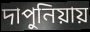
দাপুনিয়ায়